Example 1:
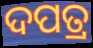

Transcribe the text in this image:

ଦପତ୍ର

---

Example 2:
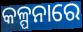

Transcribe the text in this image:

କଳ୍ପନାରେ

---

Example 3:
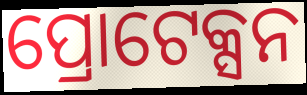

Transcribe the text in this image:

ପ୍ରୋଟେକ୍ସନ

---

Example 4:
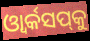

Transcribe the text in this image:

ଓ୍ୱାର୍କସପ୍‌କୁ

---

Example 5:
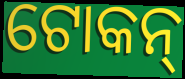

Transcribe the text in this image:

ଟୋକନ୍